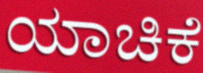
ಯಾಚಿಕೆ